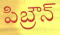
పిబ్రౌన్